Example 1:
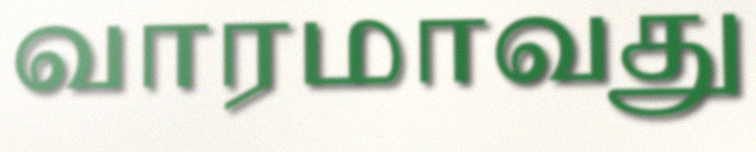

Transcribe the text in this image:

வாரமாவது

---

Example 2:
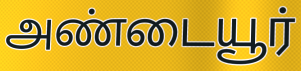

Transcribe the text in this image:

அண்டையூர்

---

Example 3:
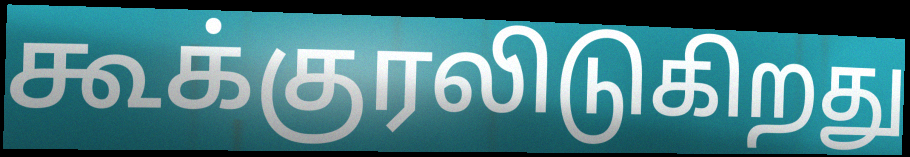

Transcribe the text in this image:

கூக்குரலிடுகிறது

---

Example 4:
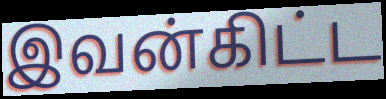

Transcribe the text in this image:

இவன்கிட்ட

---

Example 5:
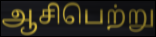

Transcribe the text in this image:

ஆசிபெற்று